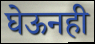
घेऊनही